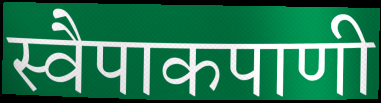
स्वैपाकपाणी